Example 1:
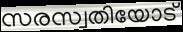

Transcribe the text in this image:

സരസ്വതിയോട്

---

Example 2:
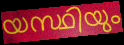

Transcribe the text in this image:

യസ്ഥിയും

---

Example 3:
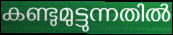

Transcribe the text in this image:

കണ്ടുമുട്ടുന്നതിൽ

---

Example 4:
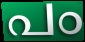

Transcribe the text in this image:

പം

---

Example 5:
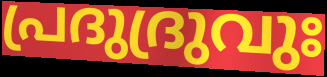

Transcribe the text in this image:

പ്രദുദ്രുവുഃ